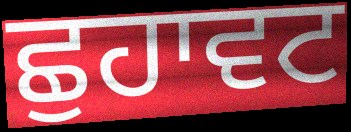
ਛੁਹਾਵਟ